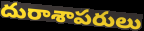
దురాశాపరులు